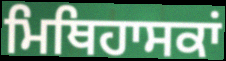
ਮਿਥਿਹਾਸਕਾਂ